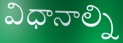
విధానాల్ని